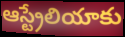
ఆస్ట్రేలియాకు